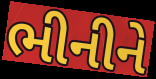
ભીનીને